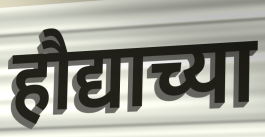
हौद्याच्या